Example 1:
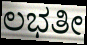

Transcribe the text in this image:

ಲಭತೀ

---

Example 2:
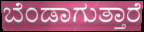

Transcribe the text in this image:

ಬೆಂಡಾಗುತ್ತಾರೆ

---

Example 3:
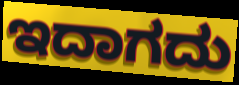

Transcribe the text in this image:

ಇದಾಗದು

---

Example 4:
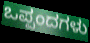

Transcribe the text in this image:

ಒಪ್ಪಂದಗಳು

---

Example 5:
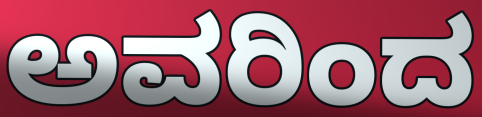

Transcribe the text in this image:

ಅವರಿಂದ